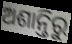
ଅଶାନ୍ତିରୁ